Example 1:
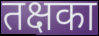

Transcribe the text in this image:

तक्षका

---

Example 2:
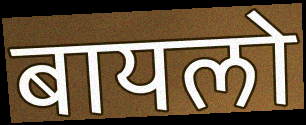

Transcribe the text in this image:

बायलो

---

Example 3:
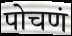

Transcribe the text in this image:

पोचणं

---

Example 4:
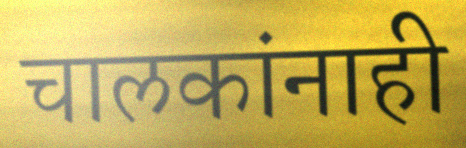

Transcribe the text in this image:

चालकांनाही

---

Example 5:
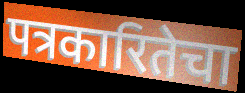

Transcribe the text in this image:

पत्रकारितेचा